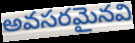
అవసరమైనవి